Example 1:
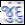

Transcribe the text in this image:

જુંદું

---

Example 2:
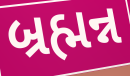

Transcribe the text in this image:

બ્રહ્મન્ન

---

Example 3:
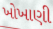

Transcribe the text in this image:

ખોખાણી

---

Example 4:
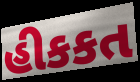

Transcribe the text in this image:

હીકકત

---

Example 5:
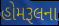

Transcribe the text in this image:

હોમરૂલના